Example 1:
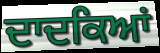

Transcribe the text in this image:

ਦਾਦਕਿਆਂ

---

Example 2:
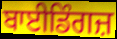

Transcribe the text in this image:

ਬਾਈਡਿੰਗਜ਼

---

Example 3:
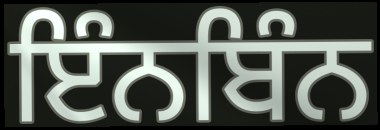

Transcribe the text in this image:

ਇੰਨਬਿੰਨ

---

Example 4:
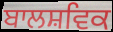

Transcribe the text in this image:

ਬਾਲਸ਼ਵਿਕ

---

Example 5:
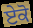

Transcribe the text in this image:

ਏਕੋ